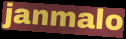
janmalo